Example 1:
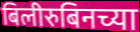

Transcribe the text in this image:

बिलीरुबिनच्या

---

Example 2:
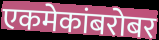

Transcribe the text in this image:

एकमेकांबरोबर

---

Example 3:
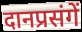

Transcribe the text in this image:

दानप्रसंगें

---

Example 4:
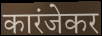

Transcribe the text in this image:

कारंजेकर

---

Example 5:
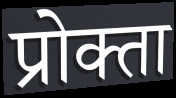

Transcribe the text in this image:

प्रोक्ता